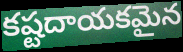
కష్టదాయకమైన